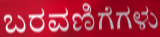
ಬರವಣಿಗೆಗಳು